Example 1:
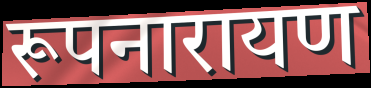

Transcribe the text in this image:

रूपनारायण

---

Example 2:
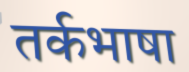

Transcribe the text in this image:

तर्कभाषा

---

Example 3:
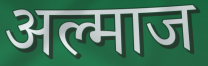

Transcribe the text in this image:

अल्माज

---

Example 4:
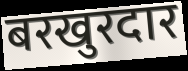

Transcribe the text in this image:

बरखुरदार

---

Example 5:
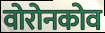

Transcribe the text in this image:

वोरोनकोव